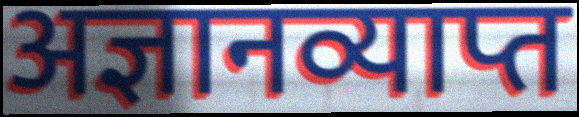
अज्ञानव्याप्त